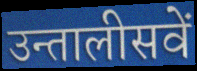
उन्तालीसवें